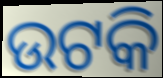
ଉଟକି